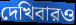
দেখিবারও